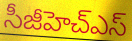
సీజీహెచ్ఎస్